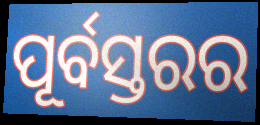
ପୂର୍ବସ୍ତରର